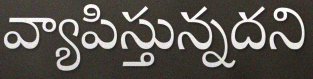
వ్యాపిస్తున్నదని